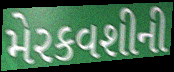
મેરકવશીની